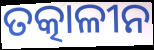
ତତ୍କାଳୀନ